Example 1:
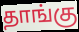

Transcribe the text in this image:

தாங்கு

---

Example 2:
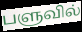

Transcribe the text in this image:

பளுவில்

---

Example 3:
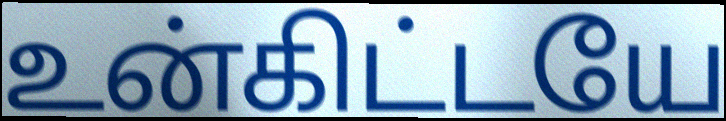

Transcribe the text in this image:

உன்கிட்டயே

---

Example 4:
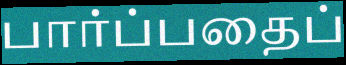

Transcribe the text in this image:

பார்ப்பதைப்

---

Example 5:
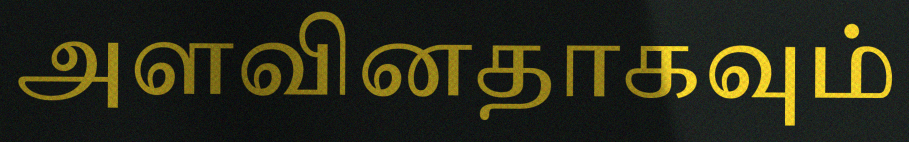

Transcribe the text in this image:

அளவினதாகவும்